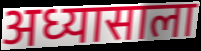
अध्यासाला